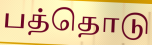
பத்தொடு